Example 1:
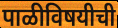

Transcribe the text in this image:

पाळीविषयीची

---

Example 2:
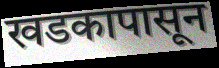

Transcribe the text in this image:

खडकापासून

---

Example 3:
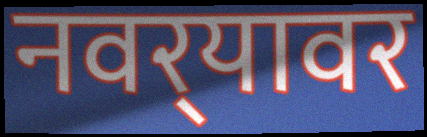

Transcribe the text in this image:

नवर्‍यावर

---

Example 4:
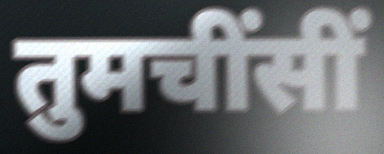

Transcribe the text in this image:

तुमचींसीं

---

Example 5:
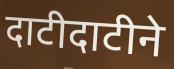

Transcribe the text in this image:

दाटीदाटीने